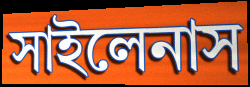
সাইলেনাস